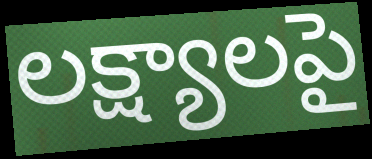
లక్ష్యాలపై